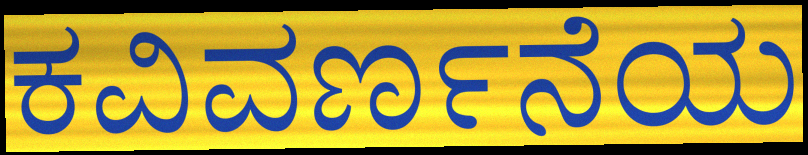
ಕವಿವರ್ಣನೆಯ